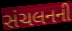
સંચલનની